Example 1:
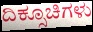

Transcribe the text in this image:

ದಿಕ್ಸೂಚಿಗಳು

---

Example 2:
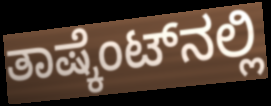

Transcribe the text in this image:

ತಾಷ್ಕೆಂಟ್‌ನಲ್ಲಿ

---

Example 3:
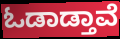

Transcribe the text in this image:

ಓಡಾಡ್ತಾವೆ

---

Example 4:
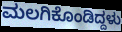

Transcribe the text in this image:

ಮಲಗಿಕೊಂಡಿದ್ದಳು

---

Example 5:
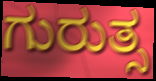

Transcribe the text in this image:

ಗುರುತ್ಸ